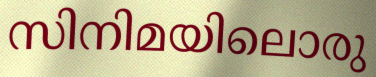
സിനിമയിലൊരു